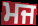
ਮਜ